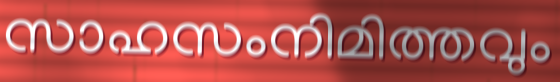
സാഹസംനിമിത്തവും